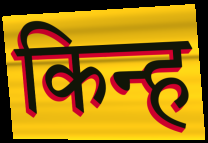
किन्ह